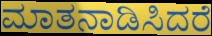
ಮಾತನಾಡಿಸಿದರೆ